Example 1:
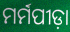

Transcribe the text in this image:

ମର୍ମପୀଡ଼ା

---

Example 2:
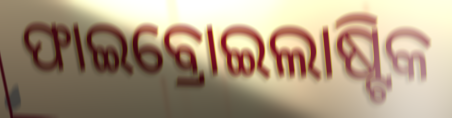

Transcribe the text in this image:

ଫାଇବ୍ରୋଇଲାଷ୍ଟିକ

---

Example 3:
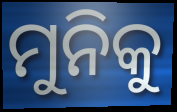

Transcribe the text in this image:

ମୁନିକୁ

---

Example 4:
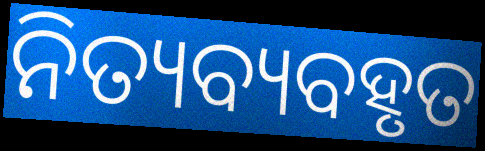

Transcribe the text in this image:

ନିତ୍ୟବ୍ୟବହୃତ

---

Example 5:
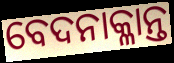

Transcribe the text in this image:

ବେଦନାକ୍ଳାନ୍ତ